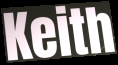
Keith